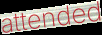
attended